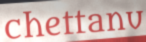
chettanu